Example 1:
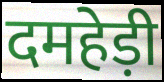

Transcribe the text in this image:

दमहेड़ी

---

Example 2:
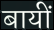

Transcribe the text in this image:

बायीं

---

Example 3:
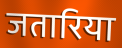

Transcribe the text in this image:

जतारिया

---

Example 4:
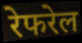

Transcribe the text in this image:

रेफरेल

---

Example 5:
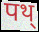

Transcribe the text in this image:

पथ्